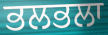
ਭਲਭਲਾ